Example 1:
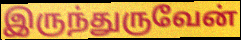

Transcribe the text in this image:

இருந்துருவேன்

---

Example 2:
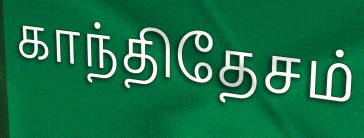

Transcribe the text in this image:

காந்திதேசம்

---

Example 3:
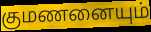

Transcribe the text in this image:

குமணனையும்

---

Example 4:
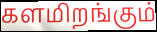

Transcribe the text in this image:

களமிறங்கும்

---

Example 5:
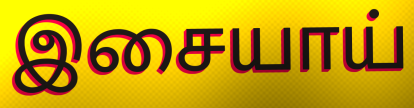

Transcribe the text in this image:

இசையாய்